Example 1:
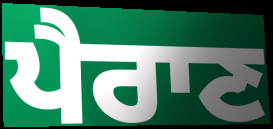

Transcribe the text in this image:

ਪੈਰਾਣ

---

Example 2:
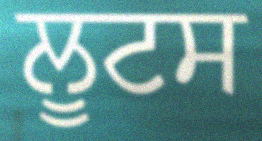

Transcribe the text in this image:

ਲੂਟਸ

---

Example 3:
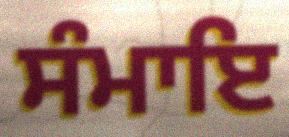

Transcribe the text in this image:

ਸੰਮਾਇ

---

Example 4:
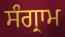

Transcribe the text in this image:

ਸੰਗ੍ਰਾਮ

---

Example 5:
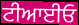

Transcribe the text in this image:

ਟੀਆਈਓ